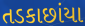
તડકાછાંયા